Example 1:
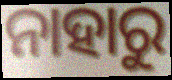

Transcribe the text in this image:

ନାହାରୁ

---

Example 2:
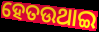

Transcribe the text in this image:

ହେତଉଥାଇ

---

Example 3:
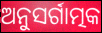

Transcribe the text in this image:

ଅନୁସର୍ଗାତ୍ମକ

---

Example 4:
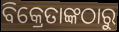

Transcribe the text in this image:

ବିକ୍ରେତାଙ୍କଠାରୁ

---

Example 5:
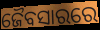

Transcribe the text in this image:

ଜୈବସାରରେ